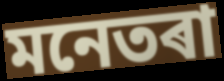
মনেতৰা